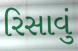
રિસાવું